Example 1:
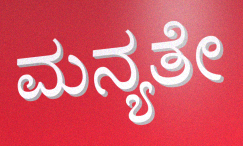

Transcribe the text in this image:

ಮನ್ಯತೇ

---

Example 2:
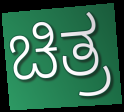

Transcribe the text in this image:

ಚಿತ್ರ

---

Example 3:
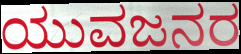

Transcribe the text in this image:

ಯುವಜನರ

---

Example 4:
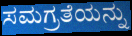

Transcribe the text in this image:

ಸಮಗ್ರತೆಯನ್ನು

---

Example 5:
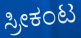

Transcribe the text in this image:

ಸ್ರೀಕಂಟ